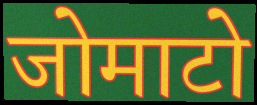
जोमाटो